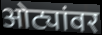
ओट्यांवर